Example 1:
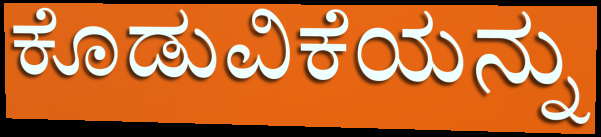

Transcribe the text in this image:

ಕೊಡುವಿಕೆಯನ್ನು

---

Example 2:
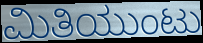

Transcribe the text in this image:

ಮಿತಿಯುಂಟು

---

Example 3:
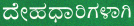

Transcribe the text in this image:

ದೇಹಧಾರಿಗಳಾಗಿ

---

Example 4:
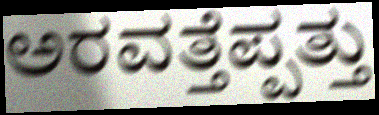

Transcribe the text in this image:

ಅರವತ್ತೆಪ್ಪತ್ತು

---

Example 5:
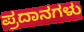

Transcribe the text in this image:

ಪ್ರದಾನಗಳು